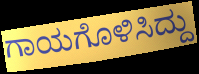
ಗಾಯಗೊಳಿಸಿದ್ದು